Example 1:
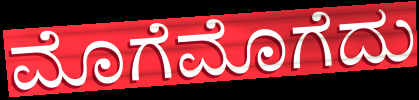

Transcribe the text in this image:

ಮೊಗೆಮೊಗೆದು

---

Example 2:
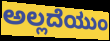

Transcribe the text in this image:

ಅಲ್ಲದೆಯುಂ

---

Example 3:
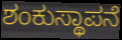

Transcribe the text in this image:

ಶಂಕುಸ್ಥಾಪನೆ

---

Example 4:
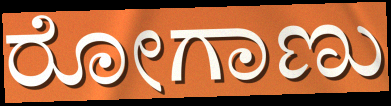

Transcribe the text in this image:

ರೋಗಾಣು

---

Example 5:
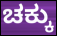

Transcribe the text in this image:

ಚಕ್ಕು